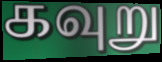
கவுறு